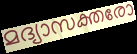
മദ്യാസക്തരോ